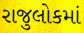
રાજુલોકમાં